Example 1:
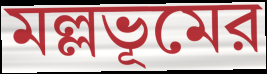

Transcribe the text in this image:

মল্লভূমের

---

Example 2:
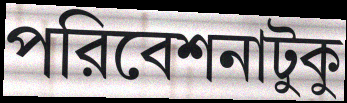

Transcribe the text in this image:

পরিবেশনাটুকু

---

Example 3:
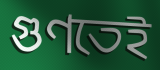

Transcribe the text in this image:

গুণতেই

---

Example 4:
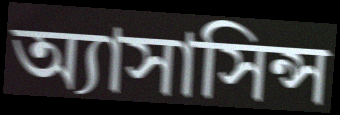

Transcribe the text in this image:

অ্যাসাসিন্স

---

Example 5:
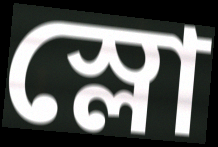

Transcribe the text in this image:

স্লো